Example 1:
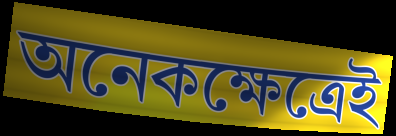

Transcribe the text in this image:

অনেকক্ষেত্রেই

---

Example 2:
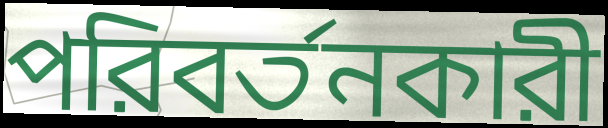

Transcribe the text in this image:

পরিবর্তনকারী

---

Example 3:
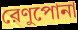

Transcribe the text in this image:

রেণুপোনা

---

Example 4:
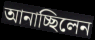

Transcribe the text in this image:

আনাচ্ছিলেন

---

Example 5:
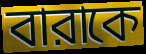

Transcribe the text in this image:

বারাকে